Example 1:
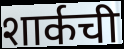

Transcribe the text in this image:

शार्कची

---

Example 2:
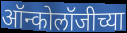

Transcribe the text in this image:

ऑन्कोलॉजीच्या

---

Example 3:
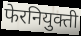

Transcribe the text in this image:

फेरनियुक्ती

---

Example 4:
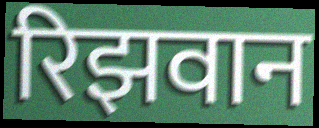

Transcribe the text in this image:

रिझवान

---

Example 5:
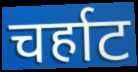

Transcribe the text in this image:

चर्हाट